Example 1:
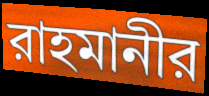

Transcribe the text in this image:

রাহমানীর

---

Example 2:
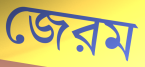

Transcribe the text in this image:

জেরম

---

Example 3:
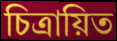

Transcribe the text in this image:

চিত্রায়িত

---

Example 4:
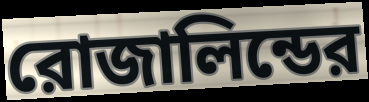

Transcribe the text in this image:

রোজালিন্ডের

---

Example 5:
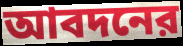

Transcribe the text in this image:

আবদনের